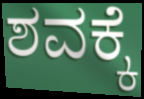
ಶವಕ್ಕೆ